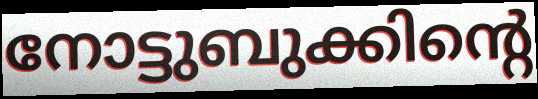
നോട്ടുബുക്കിന്റെ